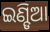
ଇଣ୍ଡିଆ